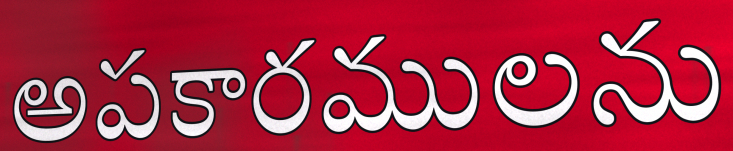
అపకారములను